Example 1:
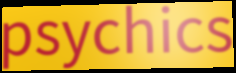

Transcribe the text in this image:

psychics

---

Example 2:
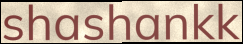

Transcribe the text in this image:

shashankk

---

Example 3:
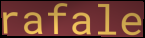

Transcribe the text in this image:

rafale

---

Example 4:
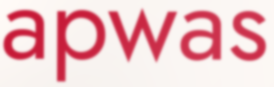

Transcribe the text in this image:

apwas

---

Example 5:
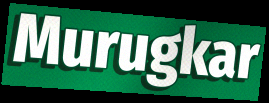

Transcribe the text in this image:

Murugkar